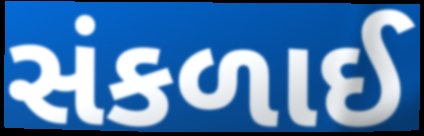
સંકળાઈ